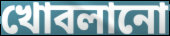
খোবলানো